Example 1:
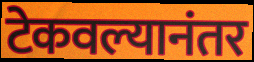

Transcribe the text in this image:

टेकवल्यानंतर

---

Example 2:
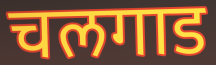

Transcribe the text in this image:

चलगाड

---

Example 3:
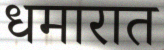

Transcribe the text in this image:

धमारात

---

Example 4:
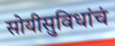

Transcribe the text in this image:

सोयीसुविधांचं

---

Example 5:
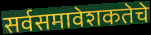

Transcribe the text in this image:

सर्वसमावेशकतेचे